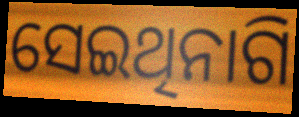
ସେଇଥିନାଗି